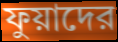
ফুয়াদের